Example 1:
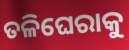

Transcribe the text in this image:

ତଳିଘେରାକୁ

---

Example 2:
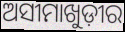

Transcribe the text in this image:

ଅସୀମାଖୁଡ଼ୀର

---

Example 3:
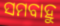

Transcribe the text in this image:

ସମବାହୁ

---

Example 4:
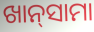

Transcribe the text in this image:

ଖାନ୍‌ସାମା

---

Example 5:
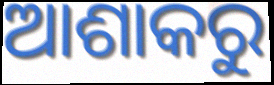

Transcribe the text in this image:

ଆଶାକରୁ